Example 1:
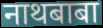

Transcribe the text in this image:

नाथबाबा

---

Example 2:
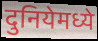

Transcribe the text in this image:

दुनियेमध्ये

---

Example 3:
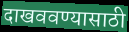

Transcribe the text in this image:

दाखववण्यासाठी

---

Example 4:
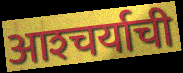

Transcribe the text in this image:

आश्‍चर्याची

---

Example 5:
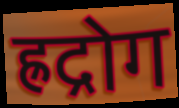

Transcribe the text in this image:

ह्रद्रोग